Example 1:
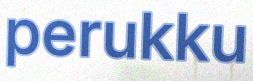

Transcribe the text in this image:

perukku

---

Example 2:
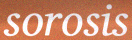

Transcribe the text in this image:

sorosis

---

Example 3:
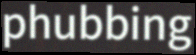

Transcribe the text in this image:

phubbing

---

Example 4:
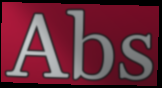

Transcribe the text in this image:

Abs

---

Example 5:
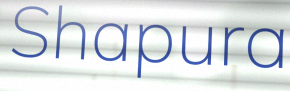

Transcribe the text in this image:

Shapura